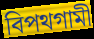
বিপথগামী